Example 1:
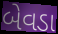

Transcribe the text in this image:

બેવડા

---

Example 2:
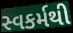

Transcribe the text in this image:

સ્વકર્મથી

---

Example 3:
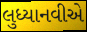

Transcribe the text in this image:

લુધ્યાનવીએ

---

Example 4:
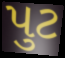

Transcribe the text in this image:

પુટ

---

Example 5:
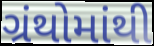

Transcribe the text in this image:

ગ્રંથોમાંથી